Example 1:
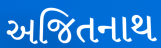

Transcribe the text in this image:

અજિતનાથ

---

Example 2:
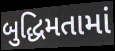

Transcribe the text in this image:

બુદ્ધિમતામાં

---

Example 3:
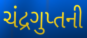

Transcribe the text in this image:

ચંદ્રગુપ્તની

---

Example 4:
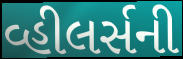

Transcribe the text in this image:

વ્હીલર્સની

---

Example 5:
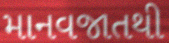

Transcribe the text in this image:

માનવજાતથી